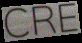
CRE